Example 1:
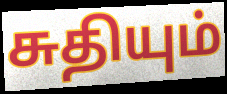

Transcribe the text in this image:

சுதியும்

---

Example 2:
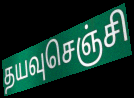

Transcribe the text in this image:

தயவுசெஞ்சி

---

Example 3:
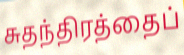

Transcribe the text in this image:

சுதந்திரத்தைப்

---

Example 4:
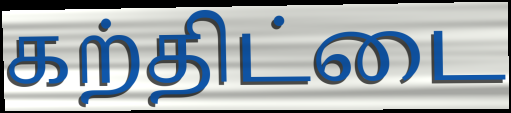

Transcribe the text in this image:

கற்திட்டை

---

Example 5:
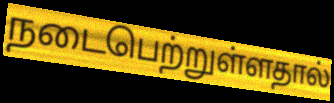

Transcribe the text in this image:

நடைபெற்றுள்ளதால்